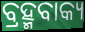
ବ୍ରହ୍ମବାକ୍ୟ